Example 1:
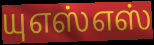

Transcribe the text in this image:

யுஎஸ்எஸ்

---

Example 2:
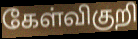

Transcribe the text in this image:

கேள்விகுறி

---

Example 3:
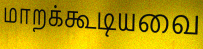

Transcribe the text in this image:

மாறக்கூடியவை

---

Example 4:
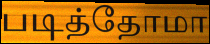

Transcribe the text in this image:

படித்தோமா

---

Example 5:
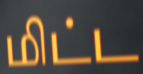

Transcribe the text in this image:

மிட்ட